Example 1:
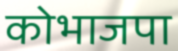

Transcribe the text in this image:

कोभाजपा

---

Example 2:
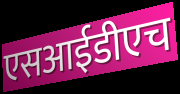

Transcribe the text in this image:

एसआईडीएच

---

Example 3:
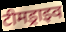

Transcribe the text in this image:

टीमड्राइव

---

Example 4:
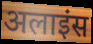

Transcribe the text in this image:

अलाइंस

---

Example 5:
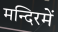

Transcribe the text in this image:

मन्दिरमें